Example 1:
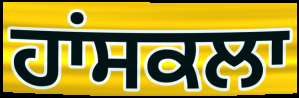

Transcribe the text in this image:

ਹਾਂਸਕਲਾ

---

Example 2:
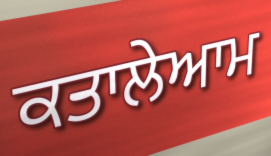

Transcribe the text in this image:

ਕਤਾਲੇਆਮ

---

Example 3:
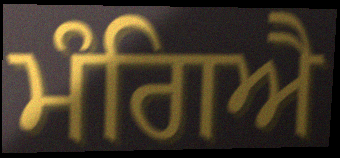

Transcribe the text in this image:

ਮੰਗਿਐ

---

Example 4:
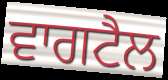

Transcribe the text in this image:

ਵਾਗਟੈਲ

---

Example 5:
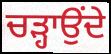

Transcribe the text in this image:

ਚੜ੍ਹਾਉਂਦੇ